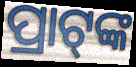
ପ୍ରାଟ୍‍ଙ୍କ